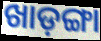
ଖାଡ଼ଙ୍ଗା